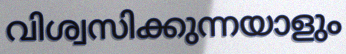
വിശ്വസിക്കുന്നയാളും